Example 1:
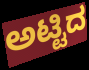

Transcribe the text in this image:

ಅಟ್ಟಿದ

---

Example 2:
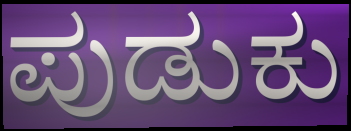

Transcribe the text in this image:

ಪುಡುಕು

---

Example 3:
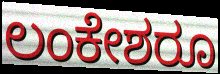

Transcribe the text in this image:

ಲಂಕೇಶರೂ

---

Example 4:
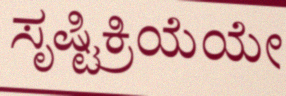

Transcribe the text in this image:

ಸೃಷ್ಟಿಕ್ರಿಯೆಯೇ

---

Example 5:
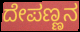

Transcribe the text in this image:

ದೇಪಣ್ಣನ